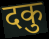
दकु